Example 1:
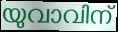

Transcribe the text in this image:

യുവാവിന്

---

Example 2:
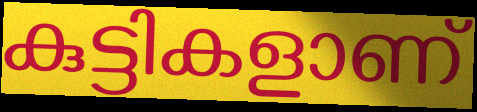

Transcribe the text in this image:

കുട്ടികളാണ്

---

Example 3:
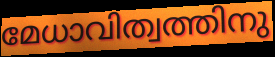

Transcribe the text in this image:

മേധാവിത്വത്തിനു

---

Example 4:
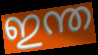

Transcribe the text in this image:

ഇന്ത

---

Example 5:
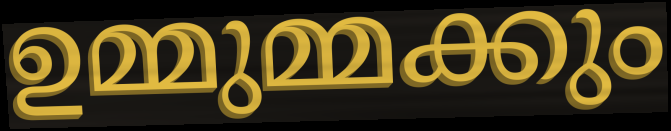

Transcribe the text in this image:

ഉമ്മുമ്മക്കും